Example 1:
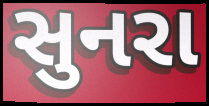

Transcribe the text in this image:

સુનરા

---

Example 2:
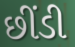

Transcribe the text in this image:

છીંડી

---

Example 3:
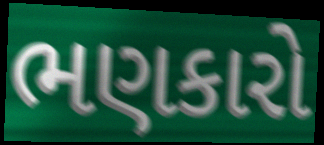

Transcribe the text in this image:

ભણકારો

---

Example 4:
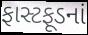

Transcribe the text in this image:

ફાસ્ટફૂડનાં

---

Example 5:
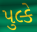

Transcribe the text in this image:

પુલ્કે